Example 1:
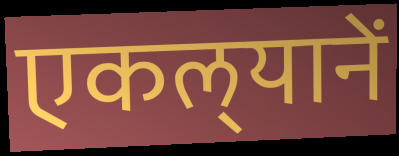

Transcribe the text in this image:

एकल्यानें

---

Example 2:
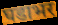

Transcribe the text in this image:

घडाभर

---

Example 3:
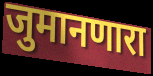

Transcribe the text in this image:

जुमानणारा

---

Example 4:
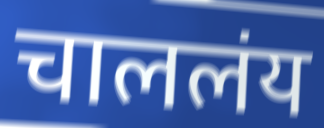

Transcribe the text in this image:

चाललंय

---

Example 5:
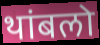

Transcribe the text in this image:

थांबलो